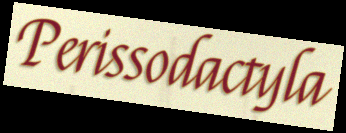
Perissodactyla